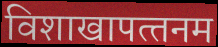
विशाखापत्‍तनम